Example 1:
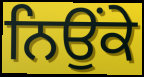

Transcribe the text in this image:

ਨਿਉਂਕੇ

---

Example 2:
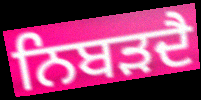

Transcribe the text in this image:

ਨਿਬੜਦੈ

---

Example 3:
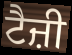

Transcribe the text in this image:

ਟੈਜ਼ੀ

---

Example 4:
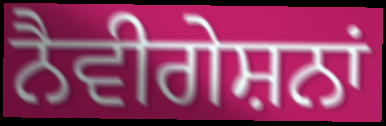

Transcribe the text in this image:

ਨੈਵੀਗੇਸ਼ਨਾਂ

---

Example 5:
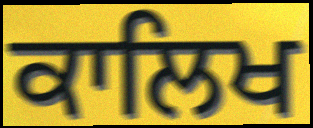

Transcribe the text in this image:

ਕਾਲਿਖ